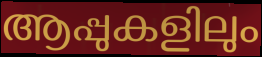
ആപ്പുകളിലും